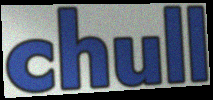
chull